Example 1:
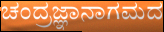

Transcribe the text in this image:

ಚಂದ್ರಜ್ಞಾನಾಗಮದ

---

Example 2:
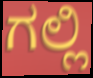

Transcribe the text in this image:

ಗಲ್ಲಿ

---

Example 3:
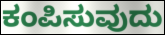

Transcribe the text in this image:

ಕಂಪಿಸುವುದು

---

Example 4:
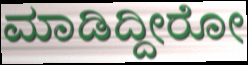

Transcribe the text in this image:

ಮಾಡಿದ್ದೀರೋ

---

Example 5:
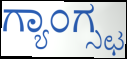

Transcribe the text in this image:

ಗ್ಯಾಂಗ್ಸ್ಟ